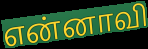
என்னாவி